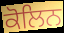
ਕੋਲਿਨ